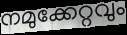
നമുക്കേറ്റവും